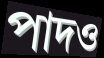
পাদও